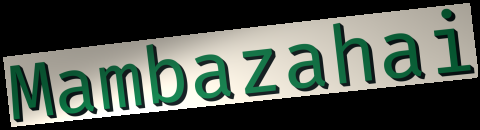
Mambazahai